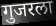
गुजरला